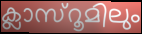
ക്ലാസ്റൂമിലും